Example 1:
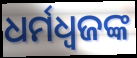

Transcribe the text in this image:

ଧର୍ମଧ୍ୱଜଙ୍କ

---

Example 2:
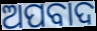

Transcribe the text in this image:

ଅପବାଦ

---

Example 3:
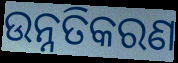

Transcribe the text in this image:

ଉନ୍ନତିକରଣ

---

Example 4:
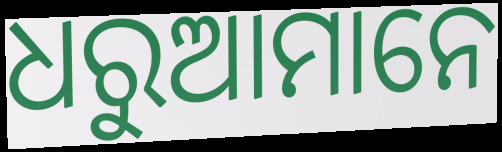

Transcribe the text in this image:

ଧରୁଆମାନେ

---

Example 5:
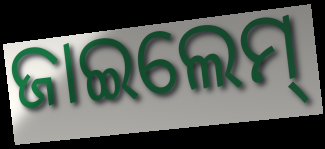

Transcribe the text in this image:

ଜାଇଲେମ୍